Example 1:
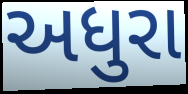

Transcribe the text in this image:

અધુરા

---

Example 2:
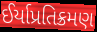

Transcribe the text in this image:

ઈર્યાપ્રતિક્રમણ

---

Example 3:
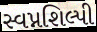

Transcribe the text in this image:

સ્વપ્નશિલ્પી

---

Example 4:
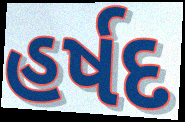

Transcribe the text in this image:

હર્ષદ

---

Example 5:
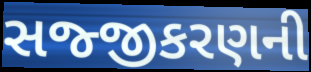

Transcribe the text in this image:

સજ્જીકરણની